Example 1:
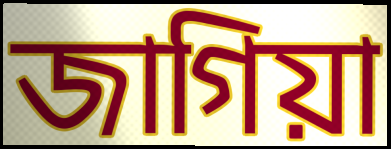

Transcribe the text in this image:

জাগিয়া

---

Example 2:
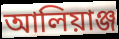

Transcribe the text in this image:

আলিয়াঞ্জ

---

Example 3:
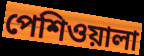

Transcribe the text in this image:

পেশিওয়ালা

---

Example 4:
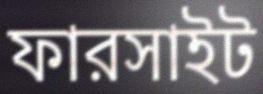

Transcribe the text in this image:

ফারসাইট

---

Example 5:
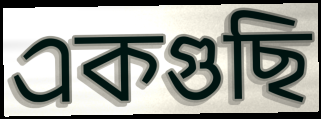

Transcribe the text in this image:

একগুছি